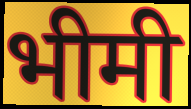
भीमी